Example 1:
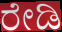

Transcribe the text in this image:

ರೇಡಿ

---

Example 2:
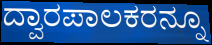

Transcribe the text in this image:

ದ್ವಾರಪಾಲಕರನ್ನೂ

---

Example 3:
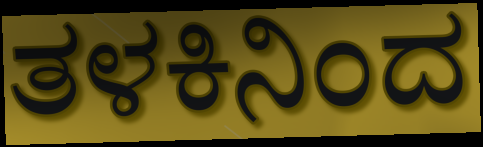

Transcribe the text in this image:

ತಳಕಿನಿಂದ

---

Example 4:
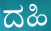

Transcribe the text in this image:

ದಹಿ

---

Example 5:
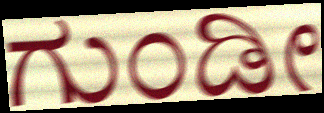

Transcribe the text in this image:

ಗುಂಡೀ